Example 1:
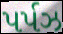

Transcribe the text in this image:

પર્પઝ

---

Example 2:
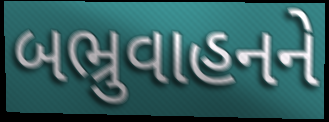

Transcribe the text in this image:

બભ્રુવાહનને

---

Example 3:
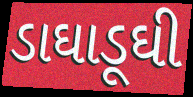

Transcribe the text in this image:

ડાઘાડૂઘી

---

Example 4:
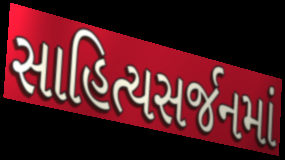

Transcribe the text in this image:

સાહિત્યસર્જનમાં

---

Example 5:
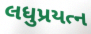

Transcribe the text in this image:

લધુપ્રયત્ન